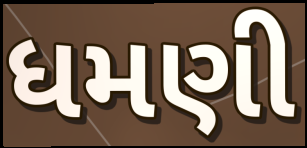
ધમણી